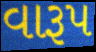
વારૂપ